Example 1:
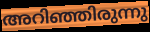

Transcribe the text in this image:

അറിഞ്ഞിരുന്നു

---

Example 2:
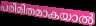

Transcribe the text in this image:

പരിമിതമാകയാൽ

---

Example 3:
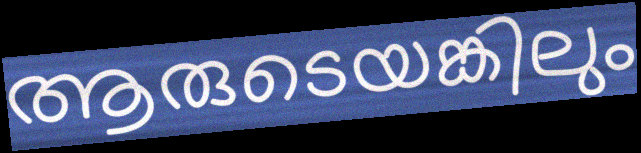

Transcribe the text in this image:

ആരുടെയങ്കിലും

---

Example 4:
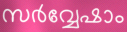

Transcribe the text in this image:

സർവ്വേഷാം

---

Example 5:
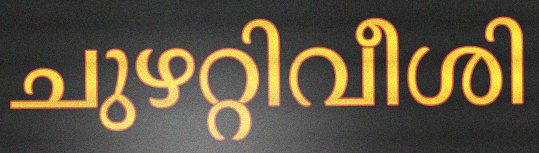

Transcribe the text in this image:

ചുഴറ്റിവീശി